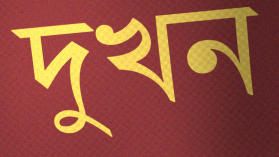
দুখন